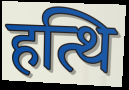
हत्थि